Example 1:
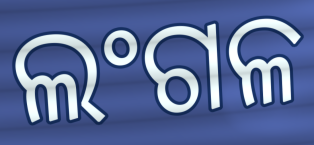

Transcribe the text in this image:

ଲଂଗଳ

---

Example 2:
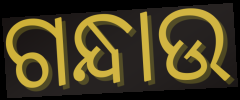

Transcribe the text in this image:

ଗନ୍ଧାଉ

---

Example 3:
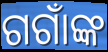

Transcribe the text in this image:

ଗଗାଁଙ୍କ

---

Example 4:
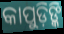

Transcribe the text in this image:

କାପୁଡ଼ିଙ୍କି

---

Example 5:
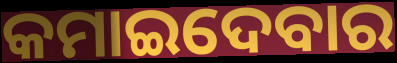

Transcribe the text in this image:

କମାଇଦେବାର